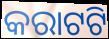
କରାଟଟି